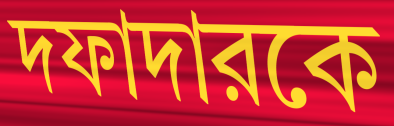
দফাদারকে